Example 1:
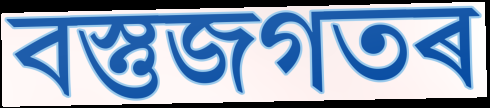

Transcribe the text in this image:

বস্তুজগতৰ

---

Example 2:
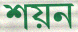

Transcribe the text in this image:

শয়ন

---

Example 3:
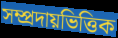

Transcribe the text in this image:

সম্প্ৰদায়ভিত্তিক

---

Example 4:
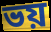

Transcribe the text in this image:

ভয়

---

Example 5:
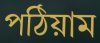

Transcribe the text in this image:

পঠিয়াম